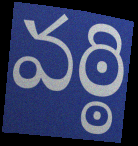
వఠ్ఠి